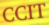
CCIT